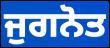
ਜੁਗਨੋਤ